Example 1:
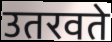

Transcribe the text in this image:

उतरवते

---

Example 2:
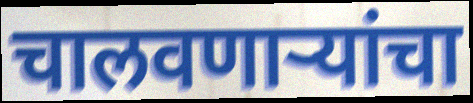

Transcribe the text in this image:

चालवणाऱ्यांचा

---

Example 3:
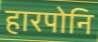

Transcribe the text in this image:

हारपोनि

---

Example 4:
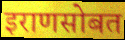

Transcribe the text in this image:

इराणसोबत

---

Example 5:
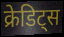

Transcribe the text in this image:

क्रेडिट्स